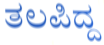
ತಲಪಿದ್ದ